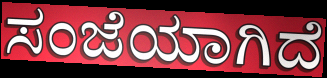
ಸಂಜೆಯಾಗಿದೆ